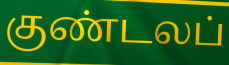
குண்டலப்